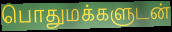
பொதுமக்களுடன்